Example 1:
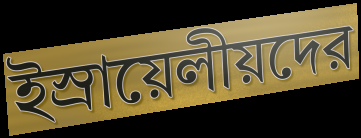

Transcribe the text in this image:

ইস্রায়েলীয়দের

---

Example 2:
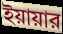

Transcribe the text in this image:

ইয়ায়ার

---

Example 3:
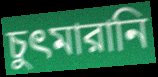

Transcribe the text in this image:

চুৎমারানি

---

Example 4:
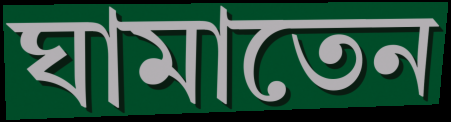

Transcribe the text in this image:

ঘামাতেন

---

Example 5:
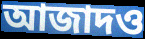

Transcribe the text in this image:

আজাদও